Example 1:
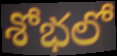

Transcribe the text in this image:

శోభలో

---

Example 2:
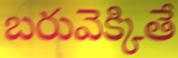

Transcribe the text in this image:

బరువెక్కితే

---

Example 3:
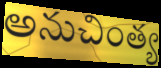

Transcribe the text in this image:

అనుచింత్య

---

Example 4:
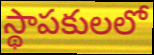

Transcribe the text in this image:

స్థాపకులలో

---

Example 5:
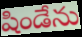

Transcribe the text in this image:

షిండేను